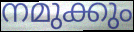
നമുക്കും